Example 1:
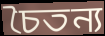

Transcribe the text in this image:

চৈতন্য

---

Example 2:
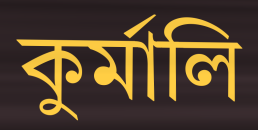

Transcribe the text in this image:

কুৰ্মালি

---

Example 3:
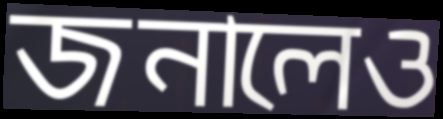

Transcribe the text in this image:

জনালেও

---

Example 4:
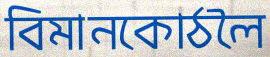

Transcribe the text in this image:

বিমানকোঠলৈ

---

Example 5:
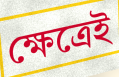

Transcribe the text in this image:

ক্ষেত্ৰেই